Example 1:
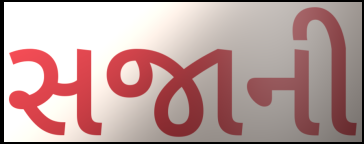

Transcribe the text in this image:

સજાની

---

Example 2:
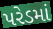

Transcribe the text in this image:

પરેડમાં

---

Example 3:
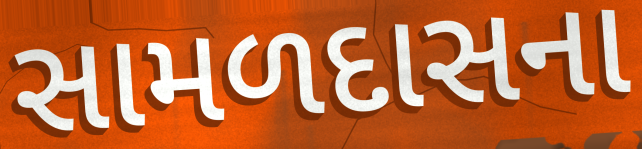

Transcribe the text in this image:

સામળદાસના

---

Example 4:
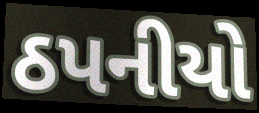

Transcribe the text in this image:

ઠપનીયો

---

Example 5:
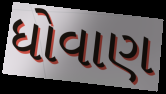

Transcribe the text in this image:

ધોવાણ